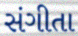
સંગીતા